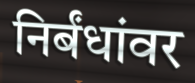
निर्बंधांवर